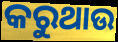
କରୁଥାଉ